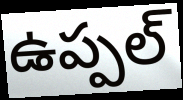
ఉప్పల్